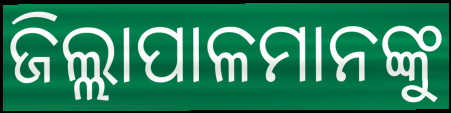
ଜିଲ୍ଲାପାଳମାନଙ୍କୁ